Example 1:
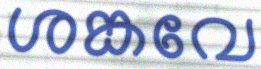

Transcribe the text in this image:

ശങ്കവേ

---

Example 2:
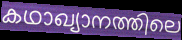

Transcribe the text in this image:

കഥാഖ്യാനത്തിലെ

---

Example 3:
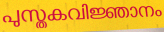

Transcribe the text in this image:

പുസ്തകവിജ്ഞാനം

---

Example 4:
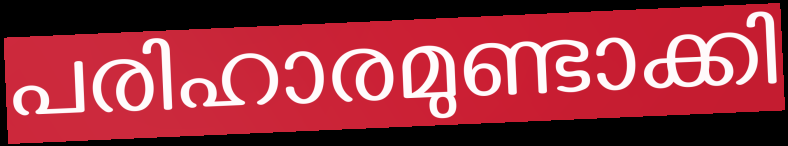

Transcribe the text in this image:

പരിഹാരമുണ്ടാക്കി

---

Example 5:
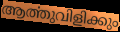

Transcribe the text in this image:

ആൎത്തുവിളിക്കും